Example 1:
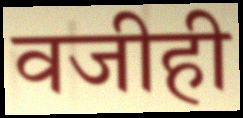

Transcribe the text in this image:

वजीही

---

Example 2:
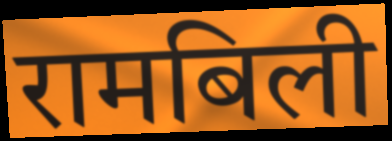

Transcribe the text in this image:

रामबिली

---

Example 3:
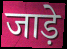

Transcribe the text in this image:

जाड़े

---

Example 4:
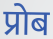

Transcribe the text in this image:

प्रोब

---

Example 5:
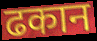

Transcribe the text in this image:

ढकान